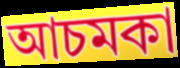
আচমকা